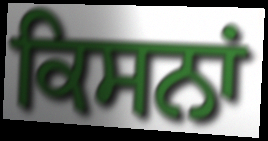
ਕਿਸਨਾਂ